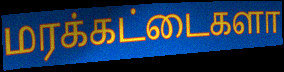
மரக்கட்டைகளா